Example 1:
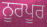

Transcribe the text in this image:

ਨੂਰਪੂਰ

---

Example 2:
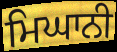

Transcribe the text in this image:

ਮਿਘਾਨੀ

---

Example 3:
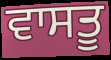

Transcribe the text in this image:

ਵਾਸਤੂ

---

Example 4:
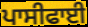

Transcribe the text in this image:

ਪਾਸੀਫਾਈ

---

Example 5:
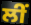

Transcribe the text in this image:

ਲੀਂ